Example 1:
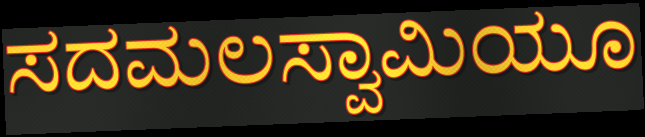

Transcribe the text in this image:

ಸದಮಲಸ್ವಾಮಿಯೂ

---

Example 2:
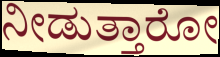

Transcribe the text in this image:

ನೀಡುತ್ತಾರೋ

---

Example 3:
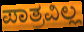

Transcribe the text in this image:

ಪಾತ್ರವಿಲ್ಲ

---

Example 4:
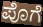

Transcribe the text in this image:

ಪೊಗೆ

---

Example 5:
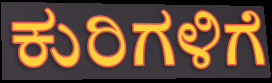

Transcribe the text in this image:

ಕುರಿಗಳಿಗೆ